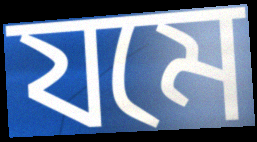
যমে